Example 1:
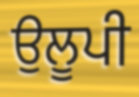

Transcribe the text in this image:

ਉਲੂਪੀ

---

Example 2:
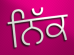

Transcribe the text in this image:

ਨਿੱਕ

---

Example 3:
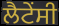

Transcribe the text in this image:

ਲੈਟੇਂਸੀ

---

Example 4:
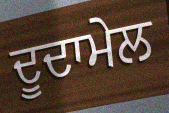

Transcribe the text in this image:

ਦੂਦਾਮੇਲ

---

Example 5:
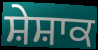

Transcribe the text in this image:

ਸ਼ੇਸ਼ਾਕ